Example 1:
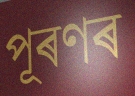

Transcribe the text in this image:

পূৰণৰ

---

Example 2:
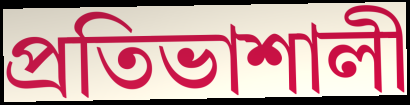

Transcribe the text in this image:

প্ৰতিভাশালী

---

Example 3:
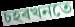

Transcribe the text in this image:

চহৰখনতে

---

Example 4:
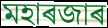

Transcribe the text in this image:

মহাৰজাৰ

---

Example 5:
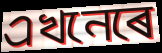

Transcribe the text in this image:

এখনেৰে